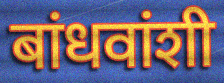
बांधवांशी